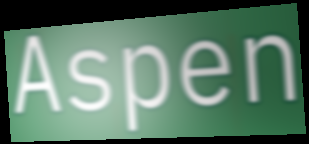
Aspen